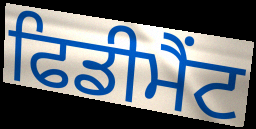
ਫਿਡੀਮੈਂਟ